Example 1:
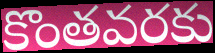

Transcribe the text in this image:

కొంతవరకు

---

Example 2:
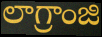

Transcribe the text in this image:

లాగ్రాంజి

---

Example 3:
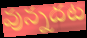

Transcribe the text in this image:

వున్నదట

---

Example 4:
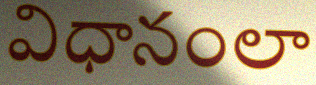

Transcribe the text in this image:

విధానంలా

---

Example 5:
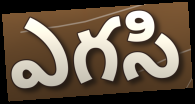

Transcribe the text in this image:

ఎగసి